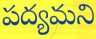
పద్యమని